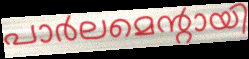
പാർലമെന്റായി